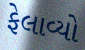
ફેલાવ્યો